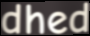
dhed